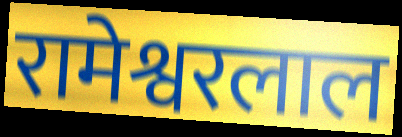
रामेश्वरलाल